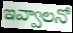
ఇవ్వాలనో